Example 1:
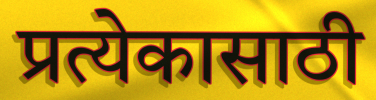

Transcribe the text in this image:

प्रत्येकासाठी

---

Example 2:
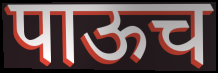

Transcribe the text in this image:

पाऊच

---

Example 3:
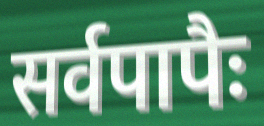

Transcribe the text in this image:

सर्वपापैः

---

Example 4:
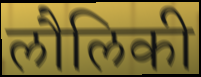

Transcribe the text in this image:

लौलिकी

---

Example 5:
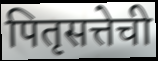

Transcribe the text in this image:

पितृसत्तेची